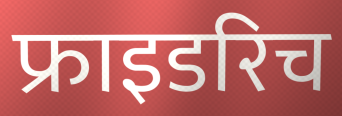
फ्राइडरिच